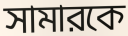
সামারকে